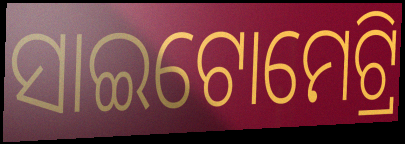
ସାଇଟୋମେଟ୍ରି